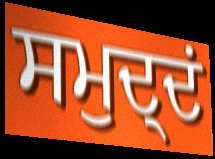
ਸਮੁਦ੍ਦਂ